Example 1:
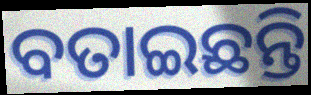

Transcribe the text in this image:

ବତାଇଛନ୍ତି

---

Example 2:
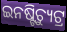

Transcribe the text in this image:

ଇନଷ୍ଟିଚ୍ୟୁଟ୍ର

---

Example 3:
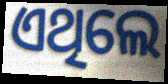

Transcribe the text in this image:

ଏଥିଲେ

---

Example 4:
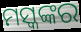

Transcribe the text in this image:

ମସ୍କଙ୍କର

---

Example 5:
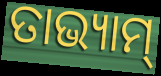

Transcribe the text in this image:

ତାଭ୍ୟାମ୍